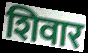
शिवार